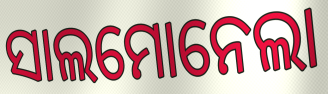
ସାଲମୋନେଲା